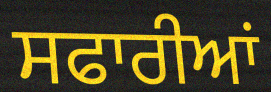
ਸਫਾਰੀਆਂ